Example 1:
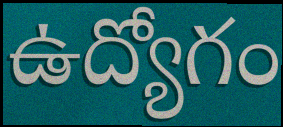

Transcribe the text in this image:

ఉద్యోగం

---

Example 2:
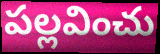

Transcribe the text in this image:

పల్లవించు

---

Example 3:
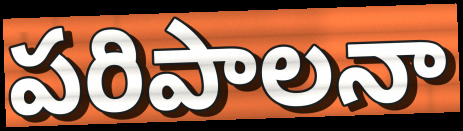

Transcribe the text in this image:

పరిపాలనా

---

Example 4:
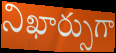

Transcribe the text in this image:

నిఖార్సుగా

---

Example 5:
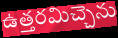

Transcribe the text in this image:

ఉత్తరమిచ్చెను